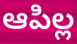
ఆపిల్ల